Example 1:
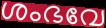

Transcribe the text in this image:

ശംഭവേ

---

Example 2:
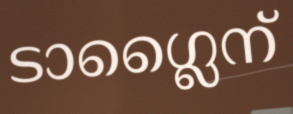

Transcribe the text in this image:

ടാഗ്ലൈന്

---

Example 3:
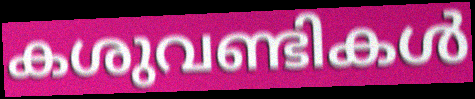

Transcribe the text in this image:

കശുവണ്ടികൾ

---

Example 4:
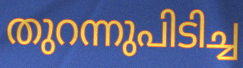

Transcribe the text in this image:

തുറന്നുപിടിച്ച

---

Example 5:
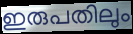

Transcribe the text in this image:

ഇരുപതിലും